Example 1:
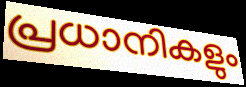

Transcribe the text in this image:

പ്രധാനികളും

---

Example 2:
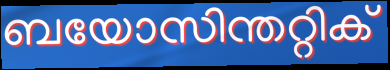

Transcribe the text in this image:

ബയോസിന്തറ്റിക്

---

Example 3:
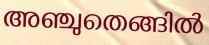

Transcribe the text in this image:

അഞ്ചുതെങ്ങിൽ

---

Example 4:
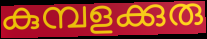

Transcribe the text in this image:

കുമ്പളക്കുരു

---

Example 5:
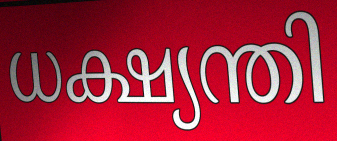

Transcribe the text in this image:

ധക്ഷ്യന്തി